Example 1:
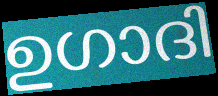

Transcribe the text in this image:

ഉഗാദി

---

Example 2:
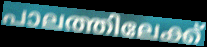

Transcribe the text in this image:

പാലത്തിലേക്ക്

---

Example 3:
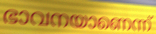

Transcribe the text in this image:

ഭാവനയാണെന്ന്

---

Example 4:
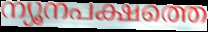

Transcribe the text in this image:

ന്യൂനപക്ഷത്തെ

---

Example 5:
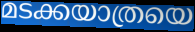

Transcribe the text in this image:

മടക്കയാത്രയെ